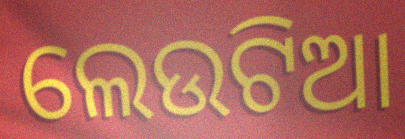
ଲେଉଟିଆ